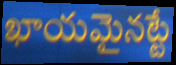
ఖాయమైనట్టే